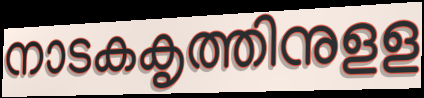
നാടകകൃത്തിനുളള